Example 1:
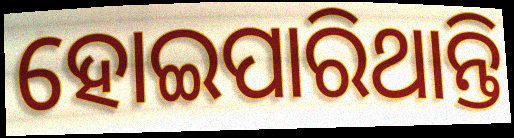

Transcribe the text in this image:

ହୋଇପାରିଥାନ୍ତି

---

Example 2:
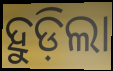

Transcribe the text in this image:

ହୁଡ଼ିଲା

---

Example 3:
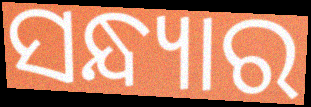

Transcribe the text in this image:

ସନ୍ଧ୍ୟାର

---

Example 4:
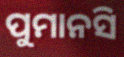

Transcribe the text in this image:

ପୁମାନସି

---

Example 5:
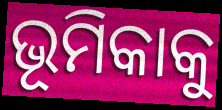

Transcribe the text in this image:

ଭୂମିକାକୁ